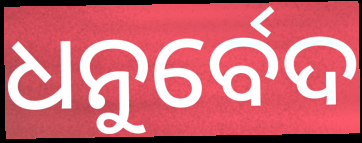
ଧନୁର୍ବେଦ